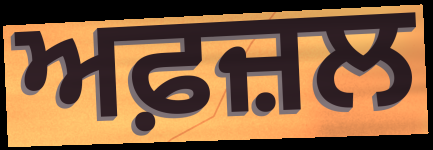
ਅਫ਼ਜ਼ਲ